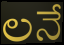
లనే